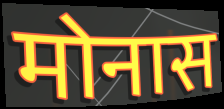
मोनास